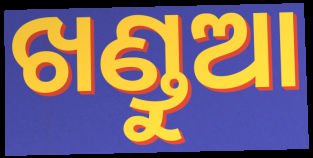
ଖଣ୍ଡୁଆ